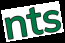
nts